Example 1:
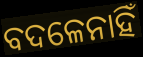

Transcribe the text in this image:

ବଦଳେନାହିଁ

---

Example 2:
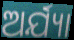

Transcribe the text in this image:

ଅର୍ଯ୍ୟା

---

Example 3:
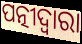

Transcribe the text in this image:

ପତ୍ନୀଦ୍ୱାରା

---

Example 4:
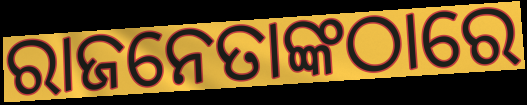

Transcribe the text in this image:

ରାଜନେତାଙ୍କଠାରେ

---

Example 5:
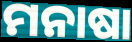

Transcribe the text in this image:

ମନାଷା